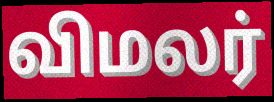
விமலர்